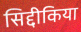
सिद्दीकिया